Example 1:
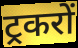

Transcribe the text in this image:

ट्रकरों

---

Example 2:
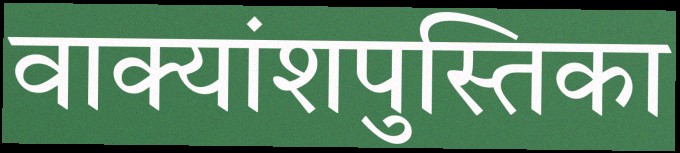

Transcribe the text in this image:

वाक्यांशपुस्तिका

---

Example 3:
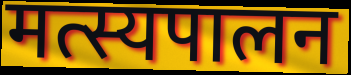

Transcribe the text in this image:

मत्स्यपालन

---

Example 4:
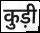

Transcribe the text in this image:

कुड़ी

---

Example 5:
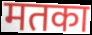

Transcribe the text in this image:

मतका